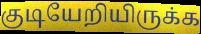
குடியேறியிருக்க